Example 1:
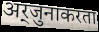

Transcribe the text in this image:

अर्जुनाकरता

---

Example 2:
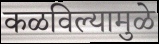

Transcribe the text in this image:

कळविल्यामुळे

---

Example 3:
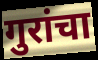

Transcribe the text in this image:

गुरांचा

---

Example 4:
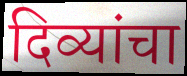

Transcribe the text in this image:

दिव्यांचा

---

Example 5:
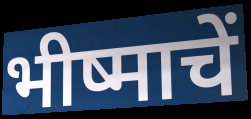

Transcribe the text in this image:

भीष्माचें